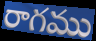
రాగము